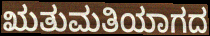
ಋತುಮತಿಯಾಗದ